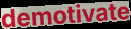
demotivate